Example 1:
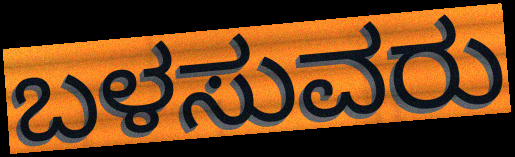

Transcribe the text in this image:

ಬಳಸುವರು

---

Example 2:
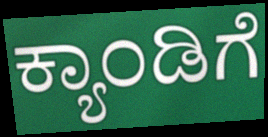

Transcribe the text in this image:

ಕ್ಯಾಂಡಿಗೆ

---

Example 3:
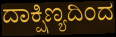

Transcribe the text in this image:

ದಾಕ್ಷಿಣ್ಯದಿಂದ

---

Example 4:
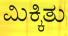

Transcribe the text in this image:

ಮಿಕ್ಕಿತು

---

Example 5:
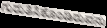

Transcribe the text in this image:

ಗುರುತಿಸಿಕೊಂಡಿರುವನು